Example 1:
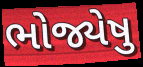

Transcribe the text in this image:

ભોજ્યેષુ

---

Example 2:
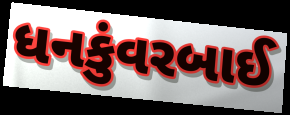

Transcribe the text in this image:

ધનકુંવરબાઈ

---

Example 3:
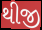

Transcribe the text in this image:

થીજી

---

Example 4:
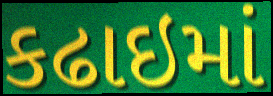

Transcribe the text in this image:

કઢાઇમાં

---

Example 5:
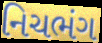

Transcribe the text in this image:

નિચભંગ